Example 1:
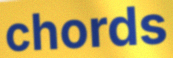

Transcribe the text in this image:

chords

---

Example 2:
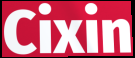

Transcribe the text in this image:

Cixin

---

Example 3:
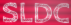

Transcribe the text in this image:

SLDC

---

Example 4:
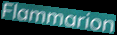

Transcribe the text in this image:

Flammarion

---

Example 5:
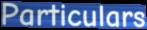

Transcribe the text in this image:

Particulars